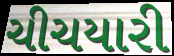
ચીચયારી